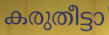
കരുതീട്ടാ